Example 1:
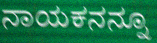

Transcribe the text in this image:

ನಾಯಕನನ್ನೂ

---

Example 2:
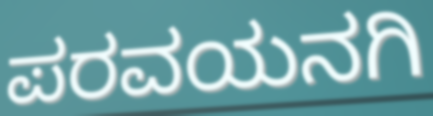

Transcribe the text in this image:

ಪರವಯನಗಿ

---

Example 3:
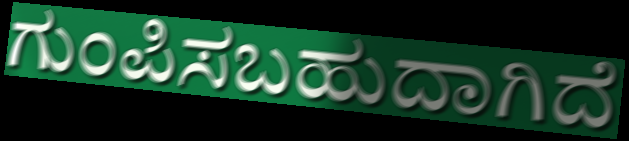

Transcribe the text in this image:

ಗುಂಪಿಸಬಹುದಾಗಿದೆ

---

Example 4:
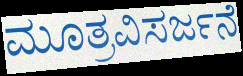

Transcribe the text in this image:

ಮೂತ್ರವಿಸರ್ಜನೆ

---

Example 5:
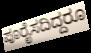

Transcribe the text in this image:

ಪೂರೈಸದಿದ್ದರೂ